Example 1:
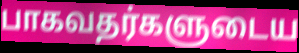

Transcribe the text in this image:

பாகவதர்களுடைய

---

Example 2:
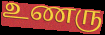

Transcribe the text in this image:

உணரு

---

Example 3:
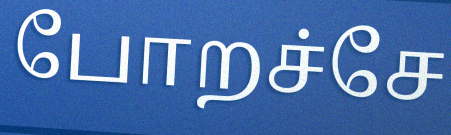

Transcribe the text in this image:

போறச்சே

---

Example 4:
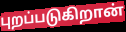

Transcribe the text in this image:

புறப்படுகிறான்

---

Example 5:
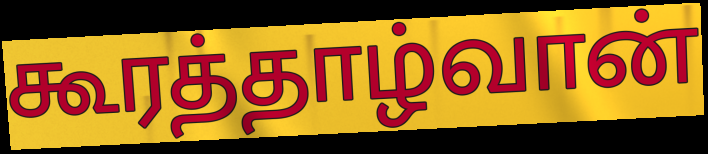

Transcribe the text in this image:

கூரத்தாழ்வான்